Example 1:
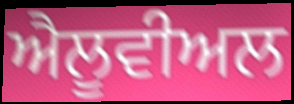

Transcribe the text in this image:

ਐਲੂਵੀਅਲ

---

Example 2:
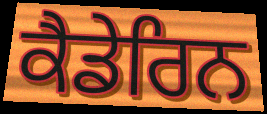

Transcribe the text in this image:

ਕੈਡੇਰਿਨ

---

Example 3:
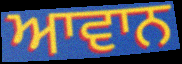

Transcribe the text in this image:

ਆਵਾਨ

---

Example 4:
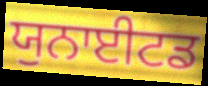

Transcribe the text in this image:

ਯੁਨਾਈਟਡ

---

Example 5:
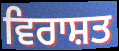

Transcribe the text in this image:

ਵਿਰਾਸ਼ਤ